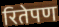
रितेपण